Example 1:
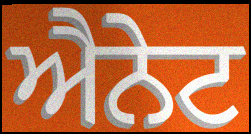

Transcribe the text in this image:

ਐਨੇਟ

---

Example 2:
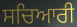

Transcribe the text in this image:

ਸਚਿਆਰੀ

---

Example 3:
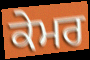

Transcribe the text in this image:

ਕੇਮਰ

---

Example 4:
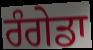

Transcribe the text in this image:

ਰੰਗੇਡਾ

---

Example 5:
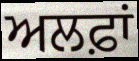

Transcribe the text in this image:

ਅਲਫ਼ਾਂ